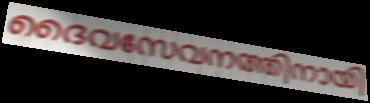
ദൈവസേവനത്തിനായി